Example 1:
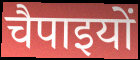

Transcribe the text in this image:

चैपाइयों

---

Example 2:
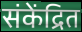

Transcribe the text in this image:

संकेंद्रित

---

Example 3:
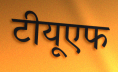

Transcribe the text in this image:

टीयूएफ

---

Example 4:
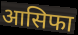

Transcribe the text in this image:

आसिफा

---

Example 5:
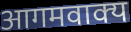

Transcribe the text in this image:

आगमवाक्य